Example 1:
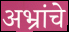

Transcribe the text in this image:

अभ्रांचे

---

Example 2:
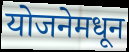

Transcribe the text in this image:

योजनेमधून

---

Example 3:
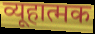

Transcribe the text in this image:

व्यूहात्मक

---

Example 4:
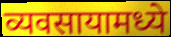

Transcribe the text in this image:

व्यवसायामध्ये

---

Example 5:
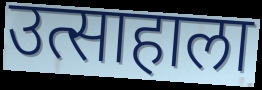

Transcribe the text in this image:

उत्साहाला